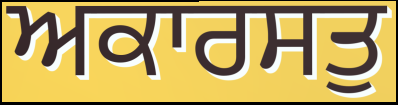
ਅਕਾਰਸਤੁ